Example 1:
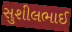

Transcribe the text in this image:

સુશીલભાઈ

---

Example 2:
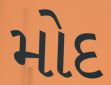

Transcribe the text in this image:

મોદ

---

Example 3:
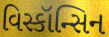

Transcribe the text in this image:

વિસ્કૉન્સિન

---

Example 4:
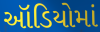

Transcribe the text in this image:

ઑડિયોમાં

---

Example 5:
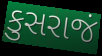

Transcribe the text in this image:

કુસરાજં